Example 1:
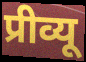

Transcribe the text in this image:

प्रीव्यू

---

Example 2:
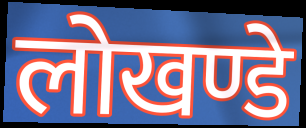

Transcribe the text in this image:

लोखण्डे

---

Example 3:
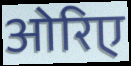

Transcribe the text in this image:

ओरिए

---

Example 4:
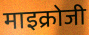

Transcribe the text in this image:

माइक्रोजी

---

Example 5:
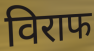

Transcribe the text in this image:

विराफ